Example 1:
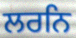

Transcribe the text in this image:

ਲਰਨਿ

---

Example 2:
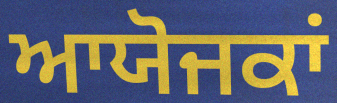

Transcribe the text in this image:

ਆਯੋਜਕਾਂ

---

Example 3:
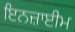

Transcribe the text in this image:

ਇਨਜ਼ਾਈਮ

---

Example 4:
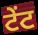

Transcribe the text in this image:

ਟੇਂਟ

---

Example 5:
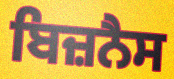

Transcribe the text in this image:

ਬਿਜ਼ਨੈਸ